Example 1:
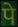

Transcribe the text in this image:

पे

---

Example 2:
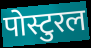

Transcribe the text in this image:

पोस्टुरल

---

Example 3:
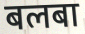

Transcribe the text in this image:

बलबा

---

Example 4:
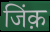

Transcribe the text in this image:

जिंक़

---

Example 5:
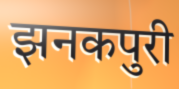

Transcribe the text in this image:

झनकपुरी